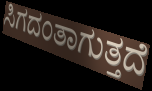
ಸಿಗದಂತಾಗುತ್ತದೆ